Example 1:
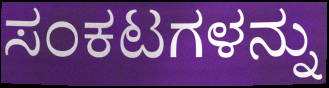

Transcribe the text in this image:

ಸಂಕಟಗಳನ್ನು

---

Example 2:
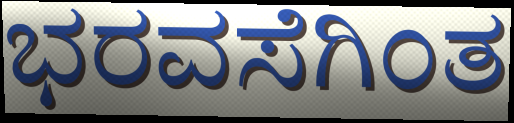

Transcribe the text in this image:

ಭರವಸೆಗಿಂತ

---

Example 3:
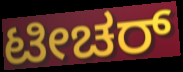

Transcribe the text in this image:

ಟೀಚರ್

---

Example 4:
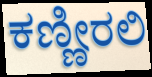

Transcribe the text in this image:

ಕಣ್ಣೀರಲಿ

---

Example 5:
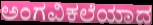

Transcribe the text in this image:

ಅಂಗವಿಕಲೆಯಾದ